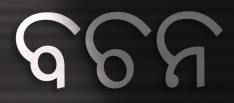
ବଚନ